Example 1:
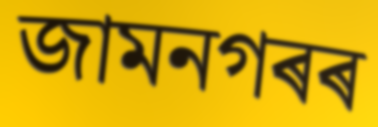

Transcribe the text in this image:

জামনগৰৰ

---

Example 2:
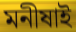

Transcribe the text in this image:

মনীষাই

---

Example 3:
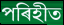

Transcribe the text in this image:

পৰিহীত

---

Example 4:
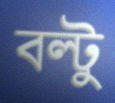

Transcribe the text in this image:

বল্টু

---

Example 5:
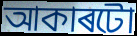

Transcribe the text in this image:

আকাৰটো